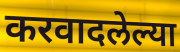
करवादलेल्या